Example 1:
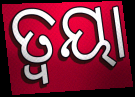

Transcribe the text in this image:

ତ୍ୱୟା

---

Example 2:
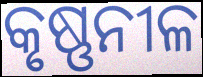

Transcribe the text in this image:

କୃଷ୍ଣନୀଳ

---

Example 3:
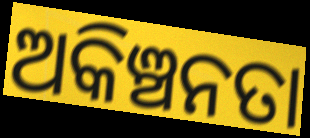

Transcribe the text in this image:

ଅକିଞ୍ଚନତା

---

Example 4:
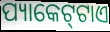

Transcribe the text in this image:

ପ୍ୟାକେଟ୍‌ଟାଏ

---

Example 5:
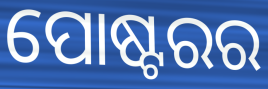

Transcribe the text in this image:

ପୋଷ୍ଟରର